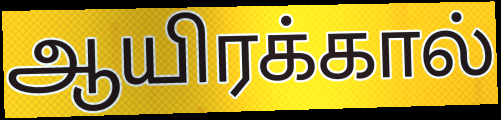
ஆயிரக்கால்